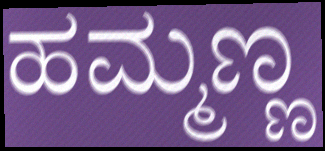
ಹಮ್ಮಣ್ಣ